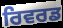
ਰਿਵਰਡ